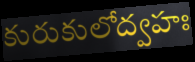
కురుకులోద్వహః